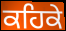
ਕਹਿਕੇ